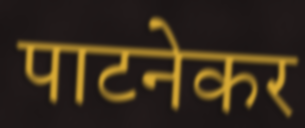
पाटनेकर